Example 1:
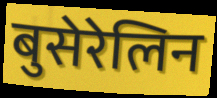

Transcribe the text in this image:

बुसेरेलिन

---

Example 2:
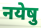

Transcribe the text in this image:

नयेषु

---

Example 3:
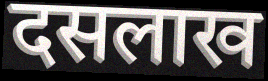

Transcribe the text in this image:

दसलाख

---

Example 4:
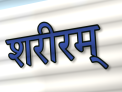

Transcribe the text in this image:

शरीरम्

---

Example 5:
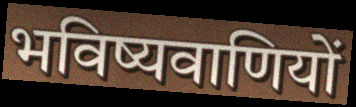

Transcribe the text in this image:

भविष्यवाणियों